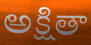
అక్షితా